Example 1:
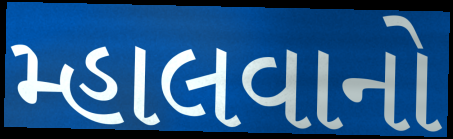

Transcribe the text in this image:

મ્હાલવાનો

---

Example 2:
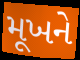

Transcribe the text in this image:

મૂખને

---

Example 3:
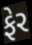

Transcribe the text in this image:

ફેર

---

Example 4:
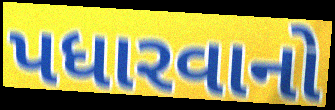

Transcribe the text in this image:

પધારવાનો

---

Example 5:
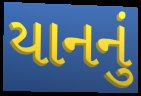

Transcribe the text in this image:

યાનનું